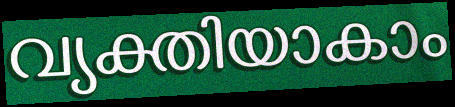
വ്യക്തിയാകാം